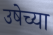
उषेच्या